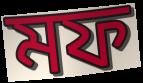
মফ